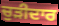
ਚੁੜੀਦਾਰ